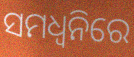
ସମଧ୍ୱନିରେ